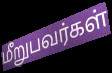
மீறுபவர்கள்